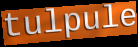
tulpule